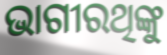
ଭାଗୀରଥିଙ୍କୁ